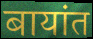
बायांत